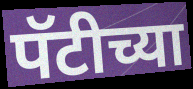
पॅटीच्या